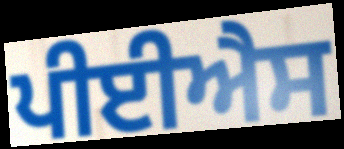
ਪੀਈਐਸ